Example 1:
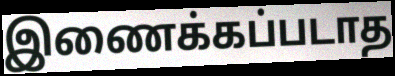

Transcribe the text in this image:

இணைக்கப்படாத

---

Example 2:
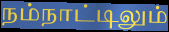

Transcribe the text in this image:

நம்நாட்டிலும்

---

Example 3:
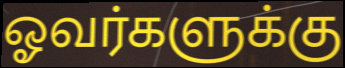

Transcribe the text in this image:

ஓவர்களுக்கு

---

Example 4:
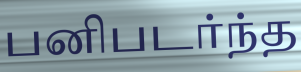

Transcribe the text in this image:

பனிபடர்ந்த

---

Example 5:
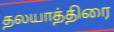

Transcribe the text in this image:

தலயாத்திரை